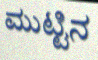
ಮುಟ್ಟಿನ